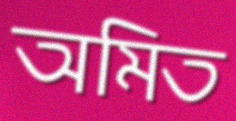
অমিত